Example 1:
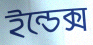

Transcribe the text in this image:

ইন্ডেক্স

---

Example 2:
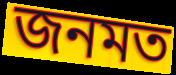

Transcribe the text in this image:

জনমত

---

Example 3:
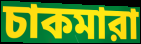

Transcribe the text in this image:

চাকমারা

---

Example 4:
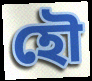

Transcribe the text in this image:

হৌ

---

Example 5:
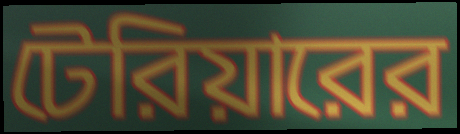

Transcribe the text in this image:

টেরিয়ারের